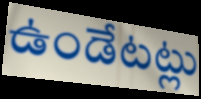
ఉండేటట్లు